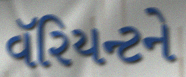
વૅરિયન્ટને